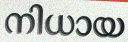
നിധായ